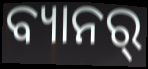
ବ୍ୟାନର୍